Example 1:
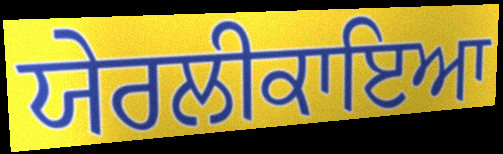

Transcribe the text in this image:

ਯੇਰਲੀਕਾਇਆ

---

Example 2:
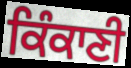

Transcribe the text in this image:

ਕਿੰਕਾਣੀ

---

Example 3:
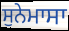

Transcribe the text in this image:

ਸੁਨੇਮਾਸਾ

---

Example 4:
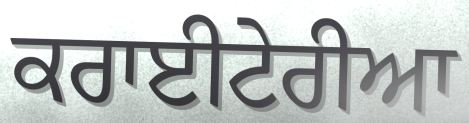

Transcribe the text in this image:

ਕਰਾਈਟੇਰੀਆ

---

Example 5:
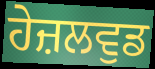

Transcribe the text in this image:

ਹੇਜ਼ਲਵੁਡ